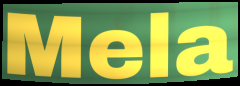
Mela